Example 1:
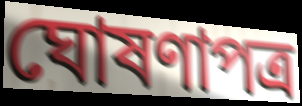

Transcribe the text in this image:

ঘোষণাপত্র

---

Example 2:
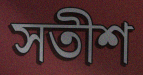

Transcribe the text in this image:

সতীশ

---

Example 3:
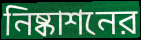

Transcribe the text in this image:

নিষ্কাশনের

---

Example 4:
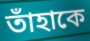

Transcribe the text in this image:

তাঁহাকে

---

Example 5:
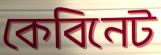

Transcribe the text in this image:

কেবিনেট